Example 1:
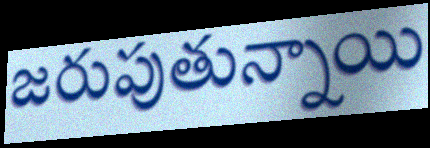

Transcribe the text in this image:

జరుపుతున్నాయి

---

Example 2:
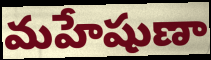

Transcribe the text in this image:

మహేషుణా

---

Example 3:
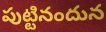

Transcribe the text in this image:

పుట్టినందున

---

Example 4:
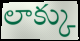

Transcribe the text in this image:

లాక్కు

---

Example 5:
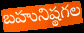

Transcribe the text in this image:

బహునిష్ఠగల